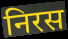
निरस